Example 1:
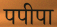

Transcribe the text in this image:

पपीपा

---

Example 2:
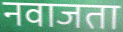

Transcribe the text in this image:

नवाजता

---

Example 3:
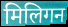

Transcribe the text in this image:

मिलिगन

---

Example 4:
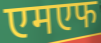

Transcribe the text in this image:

एमएफ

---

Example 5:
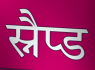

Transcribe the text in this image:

स्नैप्ड